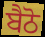
ਬੈਠੋ